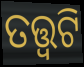
ତତ୍ତ୍ଵଟି